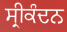
ਸ੍ਰੀਕੰਦਨ